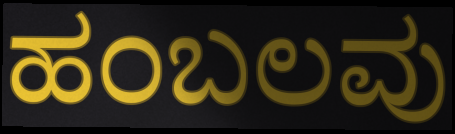
ಹಂಬಲವು